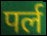
पर्ल